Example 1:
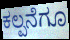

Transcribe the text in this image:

ಕಲ್ಪನೆಗೂ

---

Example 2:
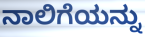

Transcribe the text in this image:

ನಾಲಿಗೆಯನ್ನು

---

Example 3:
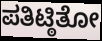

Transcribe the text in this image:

ಪತಿಟ್ಠಿತೋ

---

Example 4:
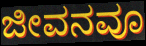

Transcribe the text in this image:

ಜೀವನವೂ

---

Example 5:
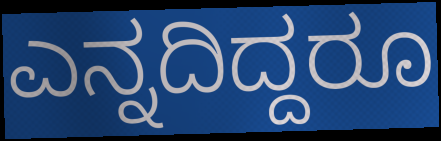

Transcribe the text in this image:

ಎನ್ನದಿದ್ದರೂ